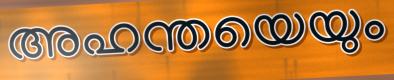
അഹന്തയെയും